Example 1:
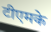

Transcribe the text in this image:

टीएमके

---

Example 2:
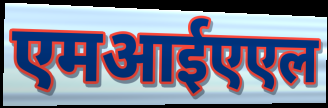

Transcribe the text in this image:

एमआईएएल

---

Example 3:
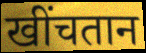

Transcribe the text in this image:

खींचतान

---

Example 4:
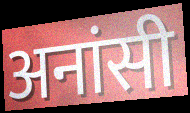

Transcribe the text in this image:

अनांसी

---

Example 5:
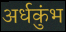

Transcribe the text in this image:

अर्धकुंभ